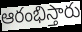
ఆరంభిస్తారు